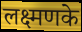
लक्ष्मणके